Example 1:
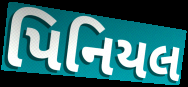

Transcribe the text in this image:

પિનિયલ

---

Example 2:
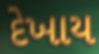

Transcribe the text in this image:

દેખાય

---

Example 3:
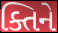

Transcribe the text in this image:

ક્તિને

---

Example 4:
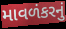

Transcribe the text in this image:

માવળંકરનું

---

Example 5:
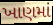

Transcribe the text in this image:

ખાણમાં